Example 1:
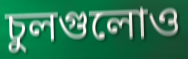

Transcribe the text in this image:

চুলগুলোও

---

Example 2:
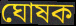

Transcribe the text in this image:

ঘোষক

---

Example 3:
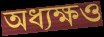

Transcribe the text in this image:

অধ্যক্ষও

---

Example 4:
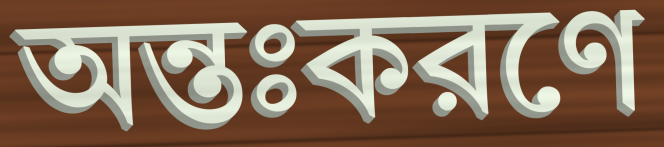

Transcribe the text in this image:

অন্তঃকরণে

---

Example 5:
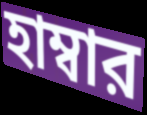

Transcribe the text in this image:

হাম্বার